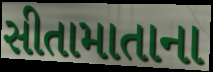
સીતામાતાના